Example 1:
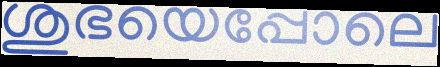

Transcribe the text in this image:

ശുഭയെപ്പോലെ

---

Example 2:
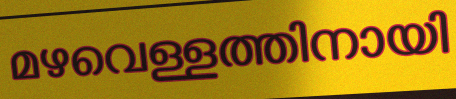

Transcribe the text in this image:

മഴവെള്ളത്തിനായി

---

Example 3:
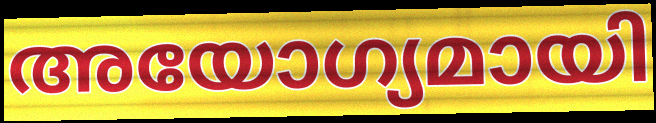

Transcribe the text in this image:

അയോഗ്യമായി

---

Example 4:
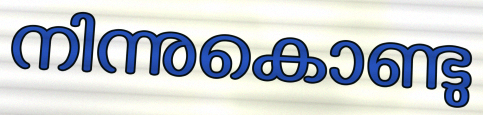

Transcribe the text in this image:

നിന്നുകൊണ്ടു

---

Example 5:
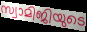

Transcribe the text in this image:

സ്വാമിജിയുടെ